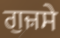
ਗੁਜ਼ਸੇ